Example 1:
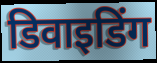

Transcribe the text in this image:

डिवाइडिंग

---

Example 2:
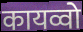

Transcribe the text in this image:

कायव्वो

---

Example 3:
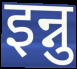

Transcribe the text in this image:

इन्नु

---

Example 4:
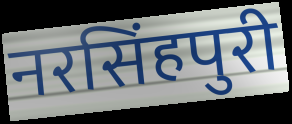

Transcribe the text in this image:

नरसिंहपुरी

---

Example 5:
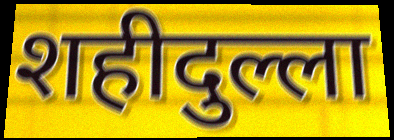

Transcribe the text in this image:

शहीदुल्ला